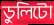
ডুলিটো